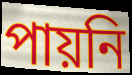
পায়নি